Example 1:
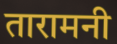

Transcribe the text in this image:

तारामनी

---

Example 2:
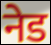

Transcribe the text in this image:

नेड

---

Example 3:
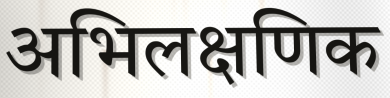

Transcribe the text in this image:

अभिलक्षणिक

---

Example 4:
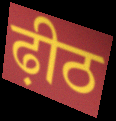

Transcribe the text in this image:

ढ़ीठ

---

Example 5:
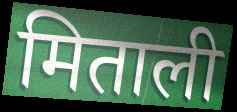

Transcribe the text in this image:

मिताली